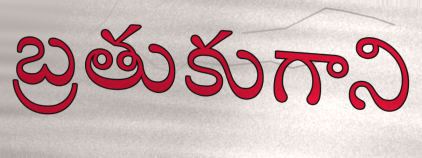
బ్రతుకుగాని